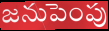
జనుపెంపు